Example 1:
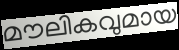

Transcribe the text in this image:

മൗലികവുമായ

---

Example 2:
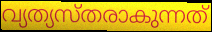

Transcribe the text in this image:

വ്യത്യസ്തരാകുന്നത്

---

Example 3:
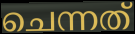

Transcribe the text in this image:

ചെന്നത്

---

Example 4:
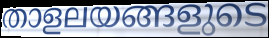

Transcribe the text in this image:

താളലയങ്ങളുടെ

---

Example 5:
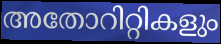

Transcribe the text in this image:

അതോറിറ്റികളും